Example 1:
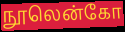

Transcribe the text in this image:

நூலென்கோ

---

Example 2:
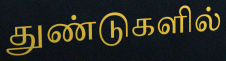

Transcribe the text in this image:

துண்டுகளில்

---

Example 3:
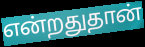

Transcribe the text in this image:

என்றதுதான்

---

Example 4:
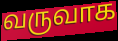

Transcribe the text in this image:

வருவாக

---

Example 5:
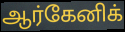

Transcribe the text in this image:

ஆர்கேனிக்